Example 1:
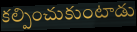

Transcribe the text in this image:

కల్పించుకుంటాడు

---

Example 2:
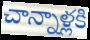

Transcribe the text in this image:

చాన్నాళ్లకి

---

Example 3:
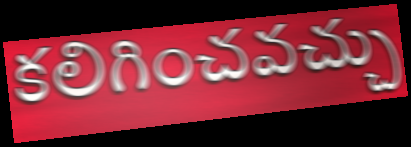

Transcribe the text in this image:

కలిగించవచ్చు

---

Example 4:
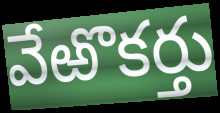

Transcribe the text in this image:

వేఱొకర్తు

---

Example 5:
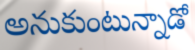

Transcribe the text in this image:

అనుకుంటున్నాడో